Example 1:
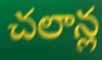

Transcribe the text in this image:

చలాన్ల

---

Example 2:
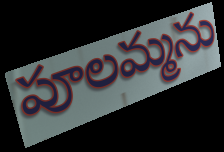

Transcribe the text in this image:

పూలమ్మను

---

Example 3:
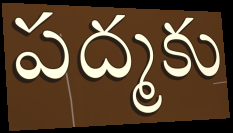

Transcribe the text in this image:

పద్మకు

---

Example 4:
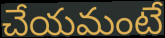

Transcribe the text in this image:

చేయమంటే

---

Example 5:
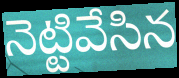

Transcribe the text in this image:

నెట్టివేసిన